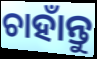
ଚାହାଁନ୍ତୁ